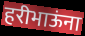
हरीभाऊंना